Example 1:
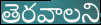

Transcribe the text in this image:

తెరవాలని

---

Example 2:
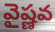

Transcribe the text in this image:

వైష్ణవ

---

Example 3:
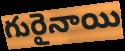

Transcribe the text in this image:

గురైనాయి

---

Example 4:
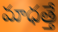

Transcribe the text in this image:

మాధత్తే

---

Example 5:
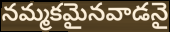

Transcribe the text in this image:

నమ్మకమైనవాడనై